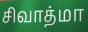
சிவாத்மா